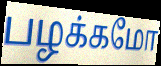
பழக்கமோ